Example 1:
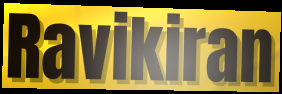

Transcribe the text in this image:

Ravikiran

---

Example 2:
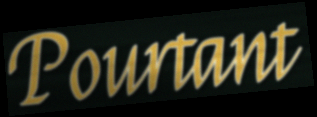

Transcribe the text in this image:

Pourtant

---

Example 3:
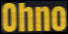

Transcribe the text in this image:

Ohno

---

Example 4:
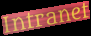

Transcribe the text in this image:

Intranet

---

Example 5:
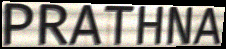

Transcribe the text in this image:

PRATHNA